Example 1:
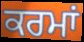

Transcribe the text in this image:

ਕਰਮਾਂ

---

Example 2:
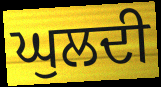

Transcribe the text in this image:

ਘੁਲਦੀ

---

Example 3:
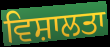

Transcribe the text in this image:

ਵਿਸ਼ਾਲਤਾ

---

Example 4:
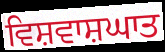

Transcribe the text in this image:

ਵਿਸ਼ਵਾਸ਼ਘਾਤ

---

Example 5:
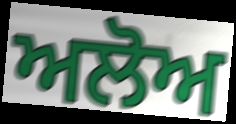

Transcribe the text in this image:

ਅਲੋਅ